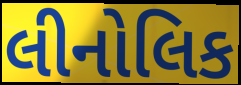
લીનોલિક